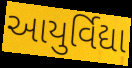
આયુર્વિદ્યા